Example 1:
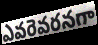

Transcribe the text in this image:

ఎవరెవరనగా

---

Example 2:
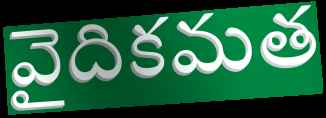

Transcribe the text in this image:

వైదికమత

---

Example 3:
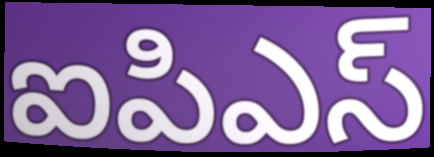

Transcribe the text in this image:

ఐపిఎస్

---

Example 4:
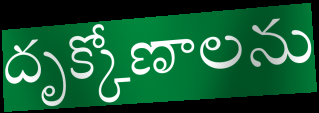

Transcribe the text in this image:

దృక్కోణాలను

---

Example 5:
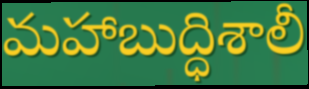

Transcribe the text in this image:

మహాబుద్ధిశాలీ